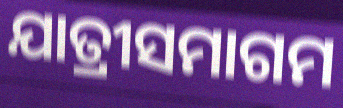
ଯାତ୍ରୀସମାଗମ